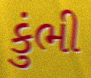
કુંભી